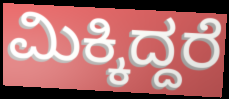
ಮಿಕ್ಕಿದ್ದರೆ